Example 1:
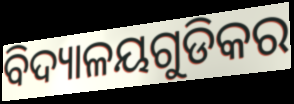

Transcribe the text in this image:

ବିଦ୍ୟାଳୟଗୁଡିକର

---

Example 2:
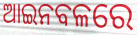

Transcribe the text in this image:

ଆଇନବଳରେ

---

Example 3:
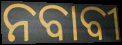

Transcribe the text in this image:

ନବାବୀ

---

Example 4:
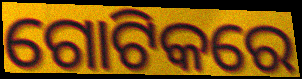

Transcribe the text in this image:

ଗୋଟିକରେ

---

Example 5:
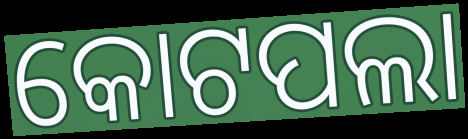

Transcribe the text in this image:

କୋଟପଲା